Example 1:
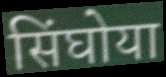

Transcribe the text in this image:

सिंघोया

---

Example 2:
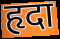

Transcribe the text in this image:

हृदा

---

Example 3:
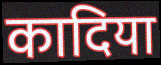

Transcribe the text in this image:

कादिया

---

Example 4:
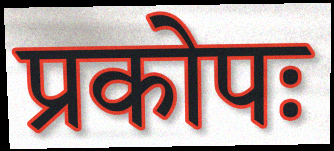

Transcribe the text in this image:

प्रकोपः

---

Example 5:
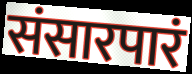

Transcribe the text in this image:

संसारपारं